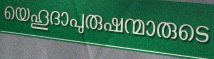
യെഹൂദാപുരുഷന്മാരുടെ